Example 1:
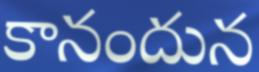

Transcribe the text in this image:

కానందున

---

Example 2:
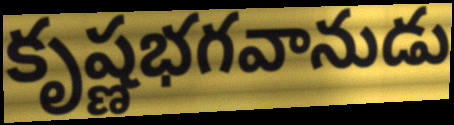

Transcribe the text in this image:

కృష్ణభగవానుడు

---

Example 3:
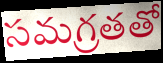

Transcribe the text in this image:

సమగ్రతతో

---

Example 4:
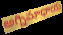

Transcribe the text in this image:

అగ్నిమాధాయ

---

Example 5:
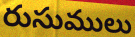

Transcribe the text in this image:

రుసుములు